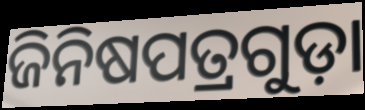
ଜିନିଷପତ୍ରଗୁଡ଼ା